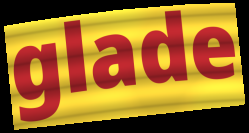
glade